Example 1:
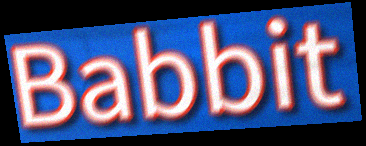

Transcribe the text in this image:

Babbit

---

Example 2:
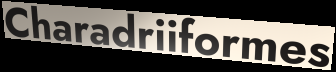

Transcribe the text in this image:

Charadriiformes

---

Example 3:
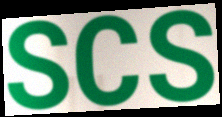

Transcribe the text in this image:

SCS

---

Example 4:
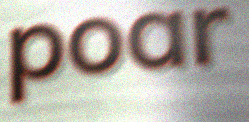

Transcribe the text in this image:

poar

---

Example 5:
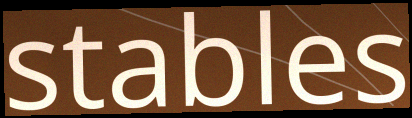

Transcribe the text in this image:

stables